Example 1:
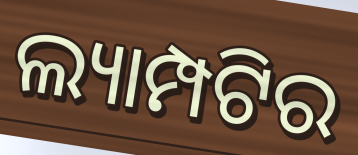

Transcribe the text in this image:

ଲ୍ୟାମ୍ପଟିର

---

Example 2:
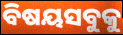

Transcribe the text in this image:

ବିଷୟସବୁକୁ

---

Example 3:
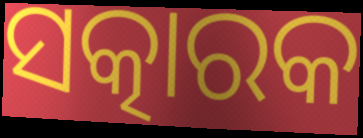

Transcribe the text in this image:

ସତ୍କାରକ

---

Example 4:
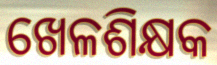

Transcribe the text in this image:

ଖେଳଶିକ୍ଷକ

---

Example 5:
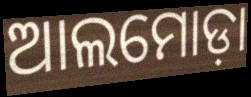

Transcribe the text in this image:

ଆଲମୋଡ଼ା